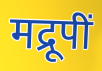
मद्रूपीं